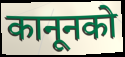
कानूनको